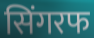
सिंगरफ